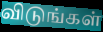
விடுங்கள்